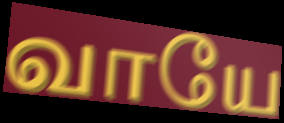
வாயே